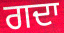
ਗਦਾ